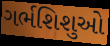
ગર્ભશિશુઓ